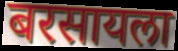
बरसायला